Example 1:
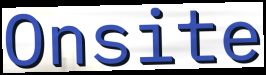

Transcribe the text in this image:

Onsite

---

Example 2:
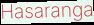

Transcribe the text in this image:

Hasaranga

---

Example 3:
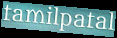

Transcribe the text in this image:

tamilpatal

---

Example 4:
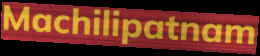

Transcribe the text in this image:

Machilipatnam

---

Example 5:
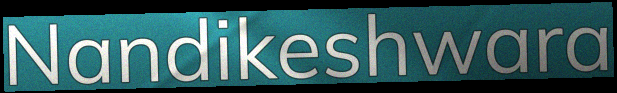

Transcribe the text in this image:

Nandikeshwara